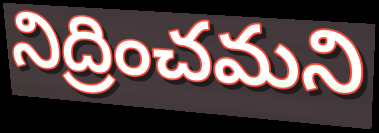
నిద్రించమని